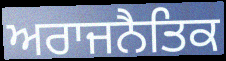
ਅਰਾਜਨੈਤਿਕ